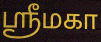
ஸ்ரீமகா